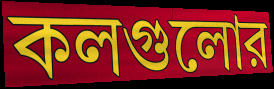
কলগুলোর